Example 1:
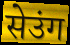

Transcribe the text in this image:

सेउंग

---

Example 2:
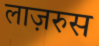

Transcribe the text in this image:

लाज़रुस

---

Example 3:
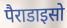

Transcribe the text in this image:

पैराडाइसो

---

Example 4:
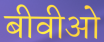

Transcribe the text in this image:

बीवीओ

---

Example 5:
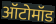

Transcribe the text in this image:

ऑटोमॉड